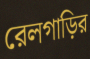
রেলগাড়ির